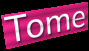
Tome